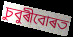
চুবুৰীবোৰত